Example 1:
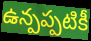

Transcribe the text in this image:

ఉన్పప్పటికీ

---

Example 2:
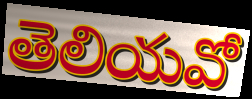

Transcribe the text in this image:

తెలియవో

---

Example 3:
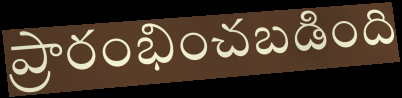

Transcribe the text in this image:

ప్రారంభించబడింది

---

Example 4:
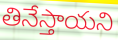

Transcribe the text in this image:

తినేస్తాయని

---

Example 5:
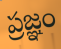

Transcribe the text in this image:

ప్రజ్ఞం